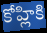
కోహ్లికి